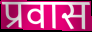
प्रवास